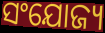
ସଂଯୋଜ୍ୟ